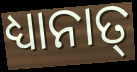
ଧ୍ୟାନାତ୍